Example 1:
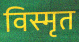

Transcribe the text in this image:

विस्मृत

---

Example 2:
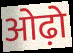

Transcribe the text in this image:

ओढ़ो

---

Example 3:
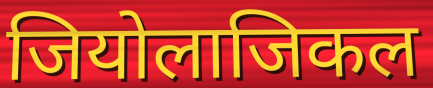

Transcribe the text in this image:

जियोलाजिकल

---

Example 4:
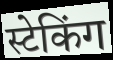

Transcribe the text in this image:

स्टेकिंग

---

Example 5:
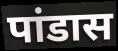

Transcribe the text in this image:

पांडास